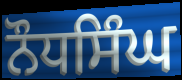
ਨੌਧਸਿੰਘ